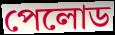
পেলোড